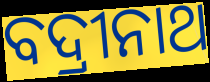
ବଦ୍ରୀନାଥ